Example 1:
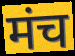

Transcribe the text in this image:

मंच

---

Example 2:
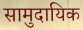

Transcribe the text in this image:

सामुदायिक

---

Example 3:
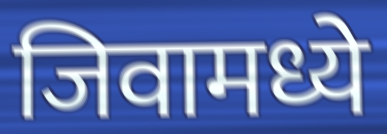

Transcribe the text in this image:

जिवामध्ये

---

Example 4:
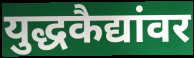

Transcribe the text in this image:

युद्धकैद्यांवर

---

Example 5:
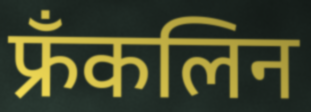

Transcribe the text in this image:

फ्रॅंकलिन